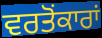
ਵਰਤੋਂਕਾਰਾਂ